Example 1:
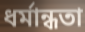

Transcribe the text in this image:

ধৰ্মান্ধতা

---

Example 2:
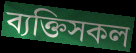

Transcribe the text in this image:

ব্যক্তিসকল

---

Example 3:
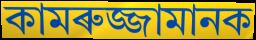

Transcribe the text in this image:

কামৰুজ্জামানক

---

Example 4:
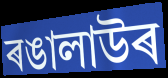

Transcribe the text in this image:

ৰঙালাউৰ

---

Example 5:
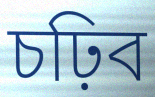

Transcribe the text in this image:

চঢ়িব